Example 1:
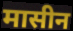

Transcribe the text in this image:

मासीन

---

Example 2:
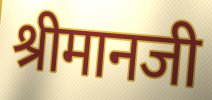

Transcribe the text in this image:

श्रीमानजी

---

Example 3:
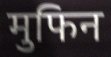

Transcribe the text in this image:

मुफिन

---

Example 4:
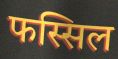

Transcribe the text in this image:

फस्सिल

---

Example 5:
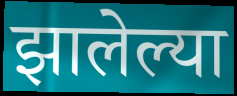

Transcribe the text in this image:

झालेल्या